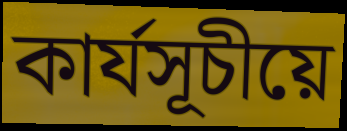
কাৰ্যসূচীয়ে